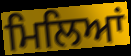
ਮਿਲਿਆਂ